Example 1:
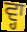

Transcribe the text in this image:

ਵ੍ਹਾ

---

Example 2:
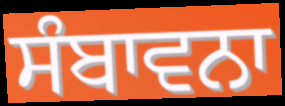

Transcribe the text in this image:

ਸੰਬਾਵਨਾ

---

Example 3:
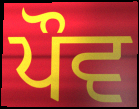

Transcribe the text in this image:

ਪੌਵ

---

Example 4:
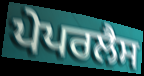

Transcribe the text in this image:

ਪੇਪਰਲੈਸ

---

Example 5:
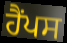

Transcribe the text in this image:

ਹੈਂਪਸ